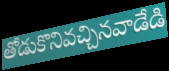
తోడుకొనివచ్చినవాడేడి